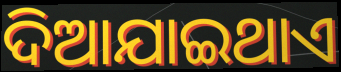
ଦିଆଯାଇଥାଏ